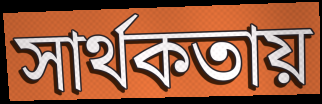
সার্থকতায়